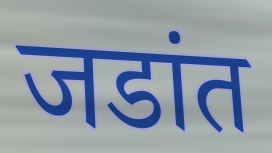
जडांत